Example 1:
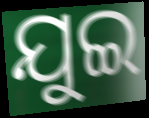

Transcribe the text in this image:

ଯୁଇ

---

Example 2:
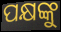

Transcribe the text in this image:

ପକ୍ଷଙ୍କୁ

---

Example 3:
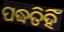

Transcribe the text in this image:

ପଦ୍ଧତିହିଁ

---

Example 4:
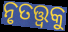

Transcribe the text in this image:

ନୃତତ୍ତ୍ଵକୁ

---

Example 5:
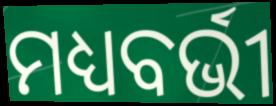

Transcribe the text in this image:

ମଧ୍ଯବର୍ଭୀ